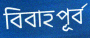
বিবাহপূর্ব